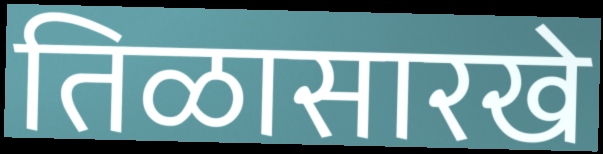
तिळासारखे